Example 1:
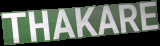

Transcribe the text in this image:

THAKARE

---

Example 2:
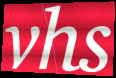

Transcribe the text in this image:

vhs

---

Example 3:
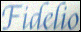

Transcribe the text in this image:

Fidelio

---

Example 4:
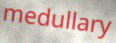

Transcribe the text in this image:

medullary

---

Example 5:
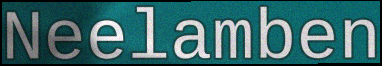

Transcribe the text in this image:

Neelamben